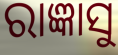
ରାଜ୍ଞାସୁ